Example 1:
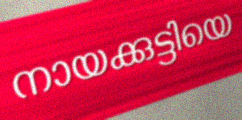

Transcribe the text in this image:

നായക്കുട്ടിയെ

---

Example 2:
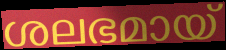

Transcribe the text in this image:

ശലഭമായ്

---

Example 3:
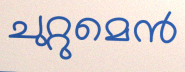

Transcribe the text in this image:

ചുറ്റുമെൻ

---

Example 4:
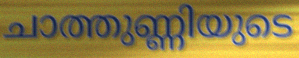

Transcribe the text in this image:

ചാത്തുണ്ണിയുടെ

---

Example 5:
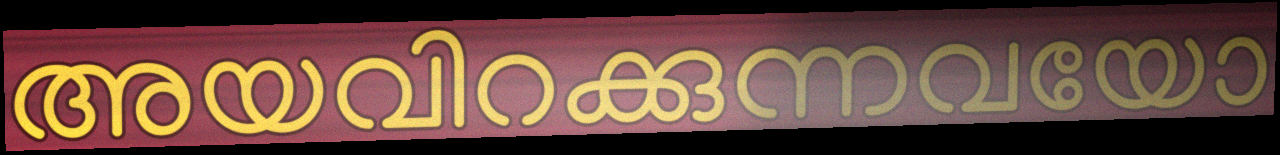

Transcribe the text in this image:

അയവിറക്കുന്നവയോ